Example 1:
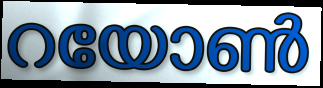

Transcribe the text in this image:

റയോൺ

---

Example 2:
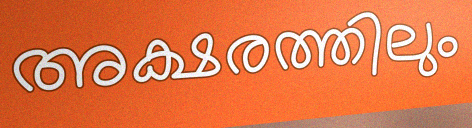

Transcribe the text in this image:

അക്ഷരത്തിലും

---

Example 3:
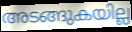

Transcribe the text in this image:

അടങ്ങുകയില്ല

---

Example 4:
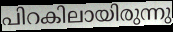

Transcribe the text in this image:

പിറകിലായിരുന്നു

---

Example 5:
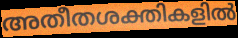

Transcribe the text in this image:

അതീതശക്തികളിൽ